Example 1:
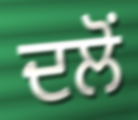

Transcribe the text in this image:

ਦਲੋਂ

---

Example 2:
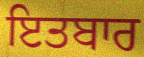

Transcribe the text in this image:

ਇਤਬਾਰ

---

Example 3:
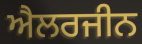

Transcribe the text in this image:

ਐਲਰਜੀਨ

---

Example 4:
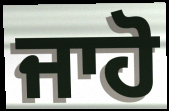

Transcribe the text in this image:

ਜਾਹੋ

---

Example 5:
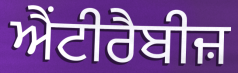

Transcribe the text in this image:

ਐਂਟੀਰੈਬੀਜ਼